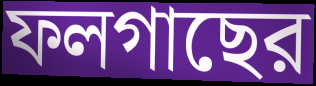
ফলগাছের